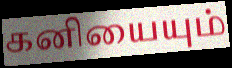
கனியையும்